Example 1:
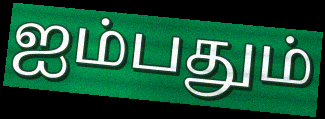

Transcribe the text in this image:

ஐம்பதும்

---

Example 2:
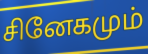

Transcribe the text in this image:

சினேகமும்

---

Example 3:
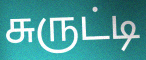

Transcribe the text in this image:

சுருட்டி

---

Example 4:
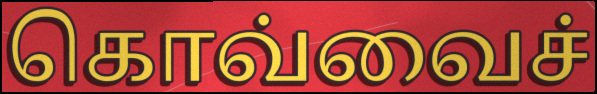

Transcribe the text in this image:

கொவ்வைச்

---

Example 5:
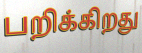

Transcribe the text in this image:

பறிக்கிறது